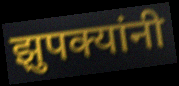
झुपक्यांनी